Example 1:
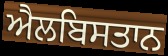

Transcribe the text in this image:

ਐਲਬਿਸਤਾਨ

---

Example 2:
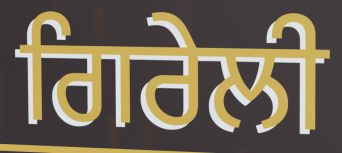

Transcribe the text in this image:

ਗਿਰੇਲੀ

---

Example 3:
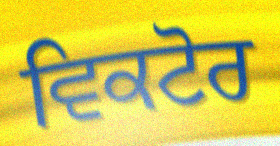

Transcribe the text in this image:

ਵਿਕਟੋਰ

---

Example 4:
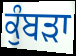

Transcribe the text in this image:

ਕੁੰਬੜਾ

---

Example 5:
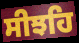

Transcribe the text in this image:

ਸੀਝਹਿ